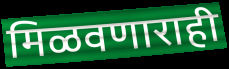
मिळवणाराही